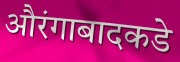
औरंगाबादकडे